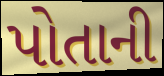
પોતાની